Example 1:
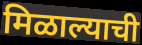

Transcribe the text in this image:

मिळाल्याची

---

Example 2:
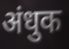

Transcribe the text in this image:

अंधुक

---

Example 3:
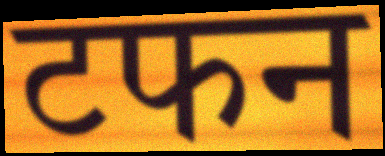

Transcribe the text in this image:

टफन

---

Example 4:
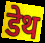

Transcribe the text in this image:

डेथ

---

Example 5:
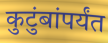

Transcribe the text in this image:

कुटुंबांपर्यंत